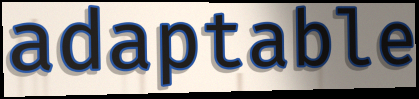
adaptable